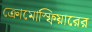
ক্রোমোস্ফিয়ারের